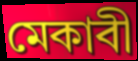
মেকাবী